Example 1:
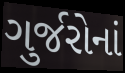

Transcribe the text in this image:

ગુર્જરોનાં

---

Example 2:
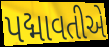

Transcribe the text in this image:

પદ્માવતીએ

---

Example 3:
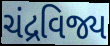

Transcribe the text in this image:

ચંદ્રવિજ્ય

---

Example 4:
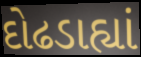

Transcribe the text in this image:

દોઢડાહ્યાં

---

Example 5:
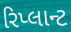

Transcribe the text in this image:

રિપ્લાન્ટ